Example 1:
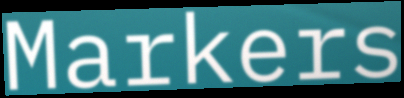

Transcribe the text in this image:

Markers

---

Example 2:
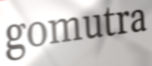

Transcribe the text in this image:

gomutra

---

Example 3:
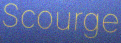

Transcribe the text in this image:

Scourge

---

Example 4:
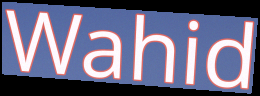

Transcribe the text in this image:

Wahid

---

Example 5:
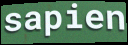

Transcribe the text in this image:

sapien